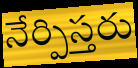
నేర్పిస్తరు